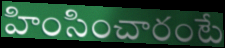
హింసించారంటే